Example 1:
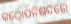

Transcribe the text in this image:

କଠୋପନିଷଦରେ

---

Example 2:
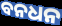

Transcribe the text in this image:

ବନଧନ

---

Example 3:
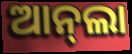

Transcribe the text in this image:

ଆନ୍‌ଲା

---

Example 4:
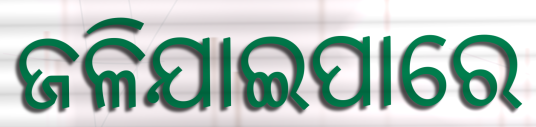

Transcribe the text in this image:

ଜଳିଯାଇପାରେ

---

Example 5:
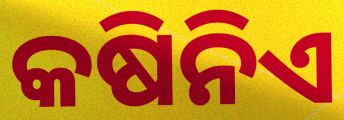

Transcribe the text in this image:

କଷିନିଏ